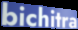
bichitra